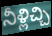
నీళ్లిచ్చి